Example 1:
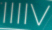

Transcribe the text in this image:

IIIIV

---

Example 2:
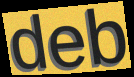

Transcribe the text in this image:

deb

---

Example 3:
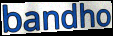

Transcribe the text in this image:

bandho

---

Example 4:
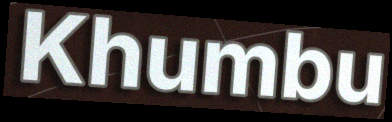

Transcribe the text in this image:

Khumbu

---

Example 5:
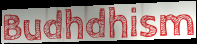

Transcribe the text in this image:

Budhdhism